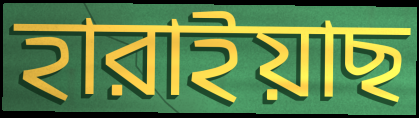
হারাইয়াছ